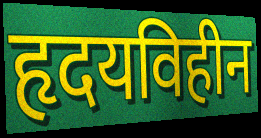
हृदयविहीन